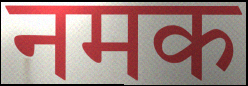
नमक